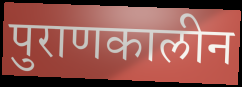
पुराणकालीन